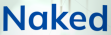
Naked